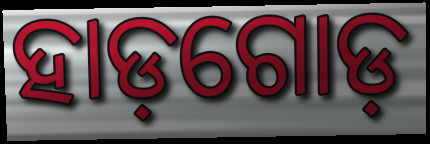
ହାଡ଼ଗୋଡ଼